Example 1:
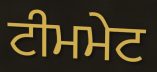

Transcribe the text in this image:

ਟੀਮਮੇਟ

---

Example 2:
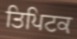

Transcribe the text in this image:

ਤਿਪਿਟਕ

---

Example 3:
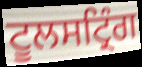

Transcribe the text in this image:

ਟੂਲਸਟ੍ਰਿੰਗ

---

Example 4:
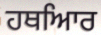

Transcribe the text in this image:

ਹਥਆਿਰ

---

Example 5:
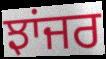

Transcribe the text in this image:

ਝਾਂਜਰ